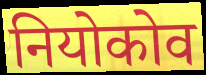
नियोकोव